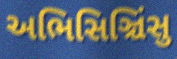
અભિસિઞ્ચિંસુ